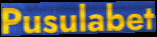
Pusulabet